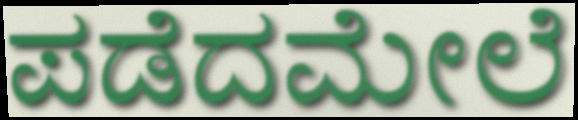
ಪಡೆದಮೇಲೆ